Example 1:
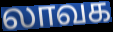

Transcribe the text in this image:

லாவக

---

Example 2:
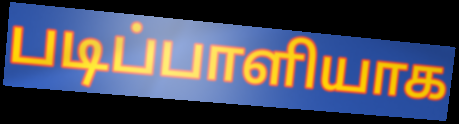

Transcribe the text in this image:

படிப்பாளியாக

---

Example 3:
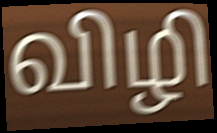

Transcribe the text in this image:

விழி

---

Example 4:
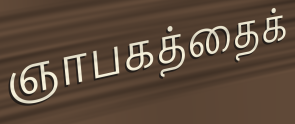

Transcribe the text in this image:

ஞாபகத்தைக்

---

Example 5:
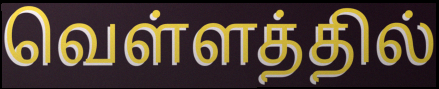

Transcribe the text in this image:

வெள்ளத்தில்